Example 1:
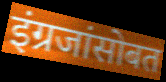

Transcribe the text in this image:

इंग्रजांसोबत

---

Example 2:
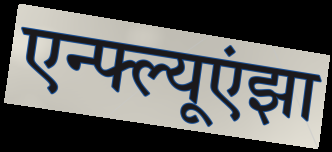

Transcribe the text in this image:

एन्फ्ल्यूएंझा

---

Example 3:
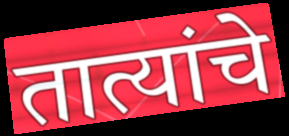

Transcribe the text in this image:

तात्यांचे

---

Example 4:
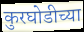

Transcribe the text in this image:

कुरघोडीच्या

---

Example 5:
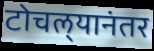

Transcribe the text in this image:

टोचल्यानंतर